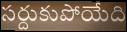
సర్దుకుపోయేది